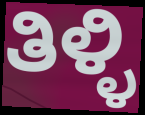
ತಿಳ್ಳಿ